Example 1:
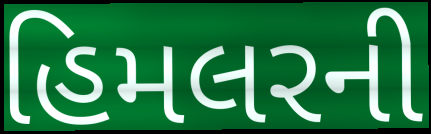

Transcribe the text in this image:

હિમલરની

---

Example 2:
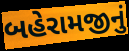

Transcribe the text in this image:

બહેરામજીનું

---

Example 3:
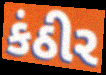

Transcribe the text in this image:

કંઠીર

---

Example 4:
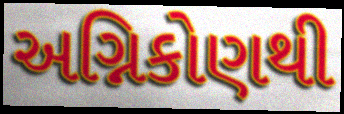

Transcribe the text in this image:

અગ્નિકોણથી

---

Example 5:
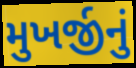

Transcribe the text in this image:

મુખર્જીનું